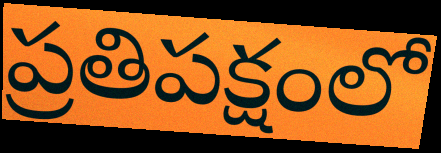
ప్రతిపక్షంలో